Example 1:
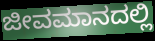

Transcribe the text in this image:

ಜೀವಮಾನದಲ್ಲಿ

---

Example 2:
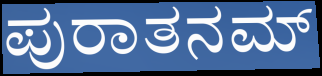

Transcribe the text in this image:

ಪುರಾತನಮ್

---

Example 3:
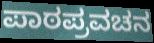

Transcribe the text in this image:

ಪಾಠಪ್ರವಚನ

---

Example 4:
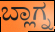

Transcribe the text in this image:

ಬ್ಲಾಗ್ನ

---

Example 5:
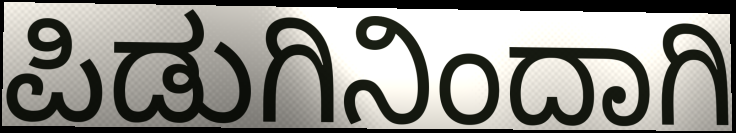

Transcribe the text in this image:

ಪಿಡುಗಿನಿಂದಾಗಿ